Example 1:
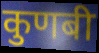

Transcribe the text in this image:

कुणबी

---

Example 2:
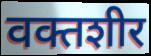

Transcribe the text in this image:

वक्तशीर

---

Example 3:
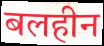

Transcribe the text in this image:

बलहीन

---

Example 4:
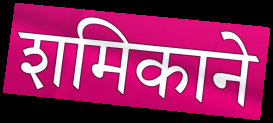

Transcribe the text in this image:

शमिकाने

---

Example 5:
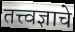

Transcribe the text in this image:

तत्त्वज्ञाचे